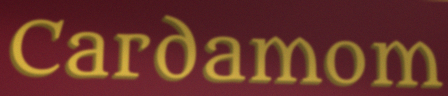
Cardamom